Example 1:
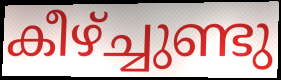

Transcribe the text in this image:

കീഴ്ച്ചുണ്ടു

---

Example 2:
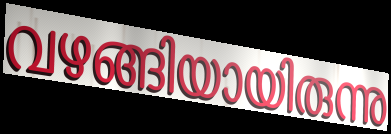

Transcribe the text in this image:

വഴങ്ങിയായിരുന്നു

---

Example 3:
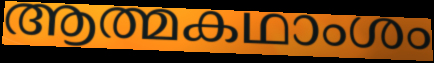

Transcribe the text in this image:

ആത്മകഥാംശം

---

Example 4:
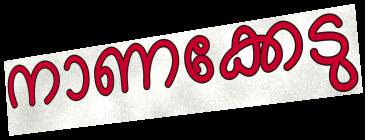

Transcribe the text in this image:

നാണക്കേടു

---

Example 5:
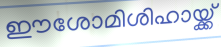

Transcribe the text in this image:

ഈശോമിശിഹായ്ക്ക്